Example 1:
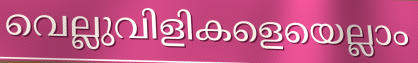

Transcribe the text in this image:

വെല്ലുവിളികളെയെല്ലാം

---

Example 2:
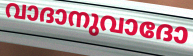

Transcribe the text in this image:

വാദാനുവാദോ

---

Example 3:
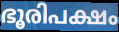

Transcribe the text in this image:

ഭൂരിപക്ഷം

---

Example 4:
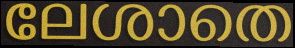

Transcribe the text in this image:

ലേശാതെ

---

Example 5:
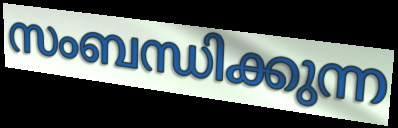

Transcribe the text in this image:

സംബന്ധിക്കുന്ന